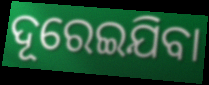
ଦୂରେଇଯିବା